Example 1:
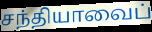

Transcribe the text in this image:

சந்தியாவைப்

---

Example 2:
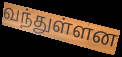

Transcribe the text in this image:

வந்துள்ளன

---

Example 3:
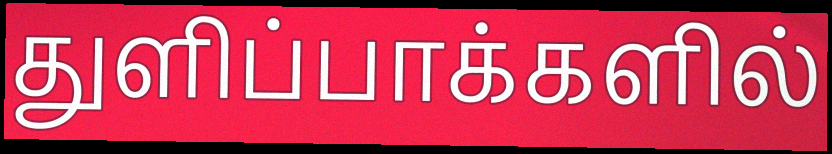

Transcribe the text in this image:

துளிப்பாக்களில்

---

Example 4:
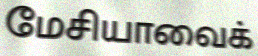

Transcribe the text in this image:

மேசியாவைக்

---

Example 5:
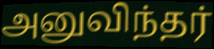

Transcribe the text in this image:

அனுவிந்தர்